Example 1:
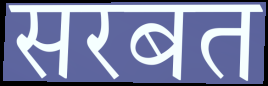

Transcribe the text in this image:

सरबत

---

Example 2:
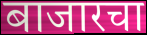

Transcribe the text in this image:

बाजारचा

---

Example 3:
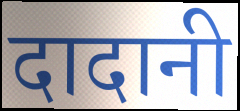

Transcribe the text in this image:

दादानी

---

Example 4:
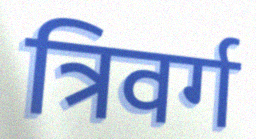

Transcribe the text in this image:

त्रिवर्ग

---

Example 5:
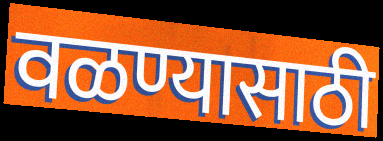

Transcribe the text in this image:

वळण्यासाठी